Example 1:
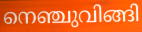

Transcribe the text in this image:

നെഞ്ചുവിങ്ങി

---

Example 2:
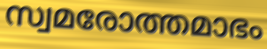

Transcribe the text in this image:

സ്വമരോത്തമാഭം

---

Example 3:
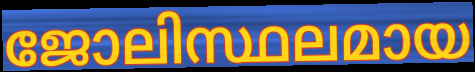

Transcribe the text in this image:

ജോലിസ്ഥലമായ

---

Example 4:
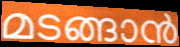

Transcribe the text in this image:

മടങ്ങാൻ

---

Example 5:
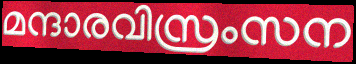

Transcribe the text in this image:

മന്ദാരവിസ്രംസന